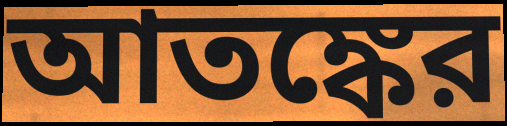
আতঙ্কের